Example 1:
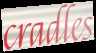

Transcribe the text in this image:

cradles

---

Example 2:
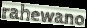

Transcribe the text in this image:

rahewano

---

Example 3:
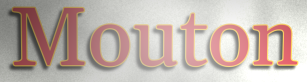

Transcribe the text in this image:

Mouton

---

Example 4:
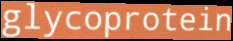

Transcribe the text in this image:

glycoprotein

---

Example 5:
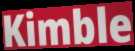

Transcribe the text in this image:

Kimble